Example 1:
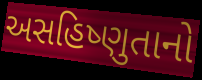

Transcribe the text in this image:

અસહિષ્ણુતાનો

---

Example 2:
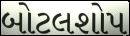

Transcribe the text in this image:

બોટલશોપ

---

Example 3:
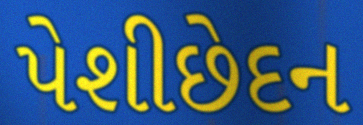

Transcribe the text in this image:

પેશીછેદન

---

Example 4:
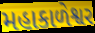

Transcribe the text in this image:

મહાકાળેશ્વર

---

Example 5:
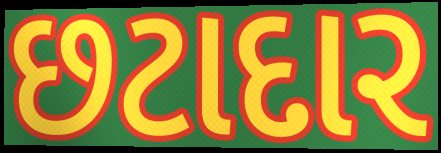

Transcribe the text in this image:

છટાદાર